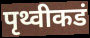
पृथ्वीकडं